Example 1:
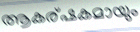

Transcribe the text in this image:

ആകര്ഷകമായും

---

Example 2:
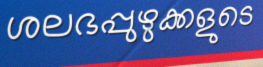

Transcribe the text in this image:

ശലഭപ്പുഴുക്കളുടെ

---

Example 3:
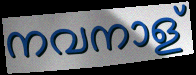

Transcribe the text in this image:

നവനാള്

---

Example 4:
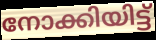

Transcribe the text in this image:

നോക്കിയിട്ട്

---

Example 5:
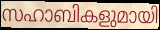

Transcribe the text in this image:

സഹാബികളുമായി